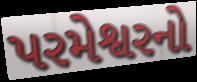
પરમેશ્વરનો